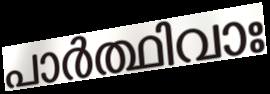
പാർത്ഥിവാഃ